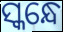
ସ୍କନ୍ଧେ